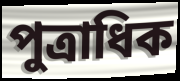
পুত্রাধিক